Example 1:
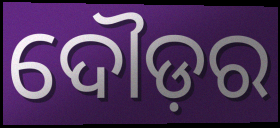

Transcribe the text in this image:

ଦୌଡ଼ର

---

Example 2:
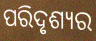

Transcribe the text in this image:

ପରିଦୃଶ୍ୟର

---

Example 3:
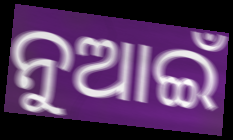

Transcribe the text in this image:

ନୁଆଇଁ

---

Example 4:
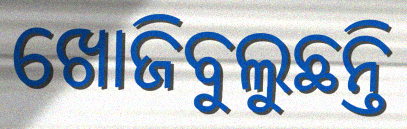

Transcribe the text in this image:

ଖୋଜିବୁଲୁଛନ୍ତି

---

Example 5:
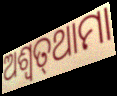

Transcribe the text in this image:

ଅଶ୍ବତ୍‌ଥାମା